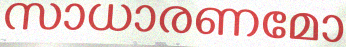
സാധാരണമോ